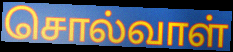
சொல்வாள்